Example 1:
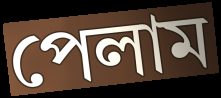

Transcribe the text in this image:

পেলাম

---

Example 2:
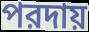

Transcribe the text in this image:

পরদায়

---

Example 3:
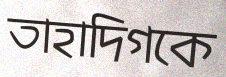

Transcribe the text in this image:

তাহাদিগকে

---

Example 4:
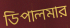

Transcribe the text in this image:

ডিপালমার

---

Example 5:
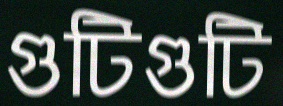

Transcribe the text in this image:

গুটিগুটি